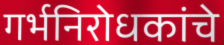
गर्भनिरोधकांचे